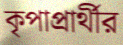
কৃপাপ্রার্থীর